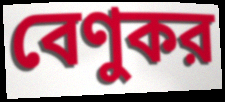
বেণুকর